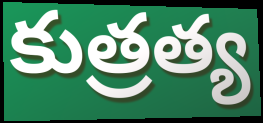
కుత్రత్య